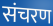
संचरण